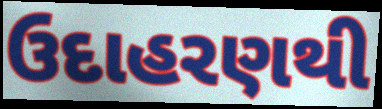
ઉદાહરણથી